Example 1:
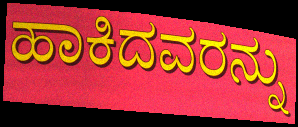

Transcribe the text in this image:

ಹಾಕಿದವರನ್ನು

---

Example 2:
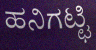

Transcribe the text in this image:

ಹನಿಗಟ್ಟಿ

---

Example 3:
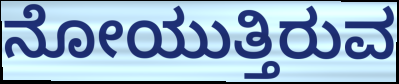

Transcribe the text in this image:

ನೋಯುತ್ತಿರುವ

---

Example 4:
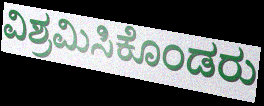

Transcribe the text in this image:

ವಿಶ್ರಮಿಸಿಕೊಂಡರು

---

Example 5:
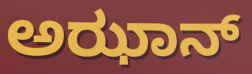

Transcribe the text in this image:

ಅಝಾನ್